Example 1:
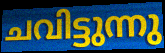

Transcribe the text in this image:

ചവിട്ടുന്നു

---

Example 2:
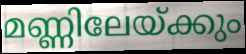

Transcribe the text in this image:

മണ്ണിലേയ്ക്കും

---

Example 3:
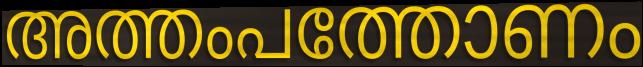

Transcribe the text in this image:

അത്തംപത്തോണം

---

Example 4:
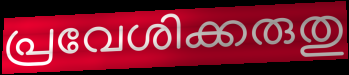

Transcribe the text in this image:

പ്രവേശിക്കരുതു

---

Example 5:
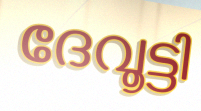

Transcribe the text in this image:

ദേവൂട്ടി